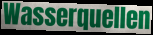
Wasserquellen